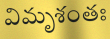
విమృశంతః